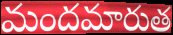
మందమారుత